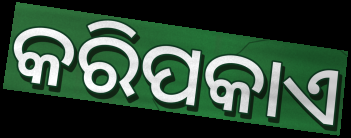
କରିପକାଏ